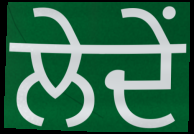
ਲੇਦੇਂ